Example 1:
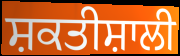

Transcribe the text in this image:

ਸ਼ਕਤੀਸ਼ਾਲੀ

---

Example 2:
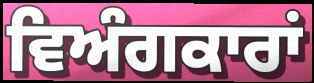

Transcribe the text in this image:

ਵਿਅੰਗਕਾਰਾਂ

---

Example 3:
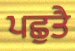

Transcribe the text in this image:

ਪਛੁਤੈ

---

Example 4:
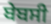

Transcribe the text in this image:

ਬੇਬਸੀ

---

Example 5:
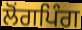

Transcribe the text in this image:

ਲੋਂਗਪਿੰਗ